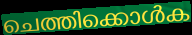
ചെത്തിക്കൊൾക